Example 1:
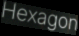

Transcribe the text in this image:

Hexagon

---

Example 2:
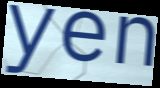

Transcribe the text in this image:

yen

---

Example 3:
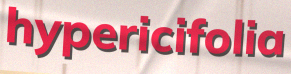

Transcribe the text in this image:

hypericifolia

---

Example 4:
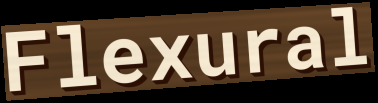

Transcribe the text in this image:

Flexural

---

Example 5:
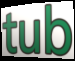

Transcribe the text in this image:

tub